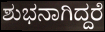
ಶುಭನಾಗಿದ್ದರೆ